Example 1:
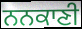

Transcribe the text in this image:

ਨਨਕਾਣੀ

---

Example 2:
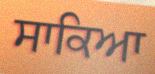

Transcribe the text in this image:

ਸਾਕਿਆ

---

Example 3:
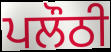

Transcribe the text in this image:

ਪਲੌਠੀ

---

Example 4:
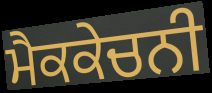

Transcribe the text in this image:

ਮੈਕਕੇਚਨੀ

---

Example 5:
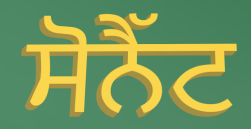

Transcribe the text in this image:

ਸੋਨੈੱਟ